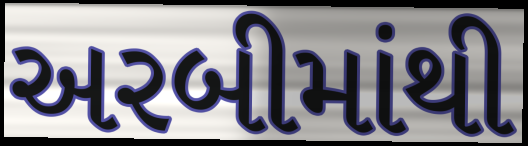
અરબીમાંથી